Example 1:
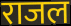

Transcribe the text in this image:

राजल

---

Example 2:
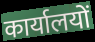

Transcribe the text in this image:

कार्यालयों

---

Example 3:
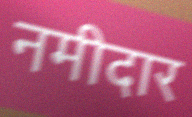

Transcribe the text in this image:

नमीदार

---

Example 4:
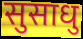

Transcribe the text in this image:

सुसाधु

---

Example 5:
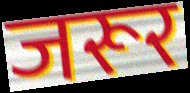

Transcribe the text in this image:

जरूर